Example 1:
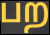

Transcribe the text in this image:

பற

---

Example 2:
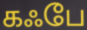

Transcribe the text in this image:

கஃபே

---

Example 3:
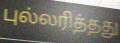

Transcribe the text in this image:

புல்லரித்தது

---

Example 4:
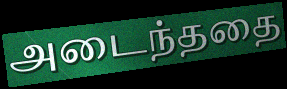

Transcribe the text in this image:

அடைந்ததை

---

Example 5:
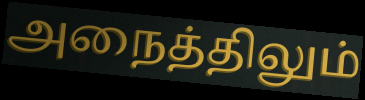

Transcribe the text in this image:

அநைத்திலும்